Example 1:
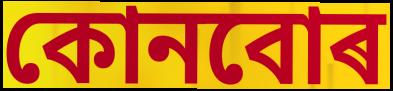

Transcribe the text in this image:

কোনবোৰ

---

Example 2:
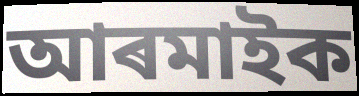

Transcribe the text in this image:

আৰমাইক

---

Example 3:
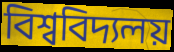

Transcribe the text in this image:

বিশ্ববিদ্যলয়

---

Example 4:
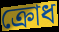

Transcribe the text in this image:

ক্ৰোধ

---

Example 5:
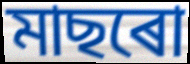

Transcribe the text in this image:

মাছৰো